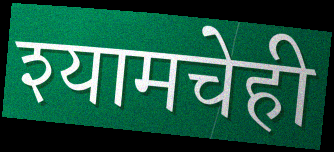
श्यामचेही